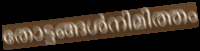
തോട്ടങ്ങൾനിമിത്തം